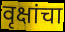
वृक्षांचा